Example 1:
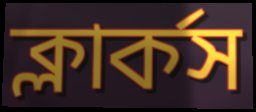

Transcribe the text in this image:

ক্লার্কস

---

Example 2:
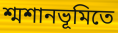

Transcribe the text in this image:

শ্মশানভূমিতে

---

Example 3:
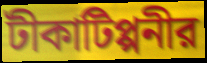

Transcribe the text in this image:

টীকাটিপ্পনীর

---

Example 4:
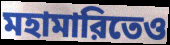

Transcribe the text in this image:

মহামারিতেও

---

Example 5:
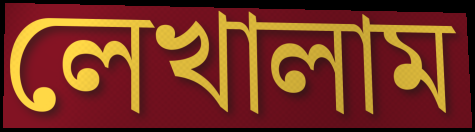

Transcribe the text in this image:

লেখালাম